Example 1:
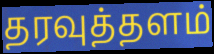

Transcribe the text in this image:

தரவுத்தளம்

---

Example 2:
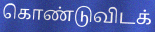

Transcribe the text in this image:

கொண்டுவிடக்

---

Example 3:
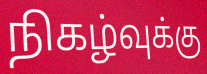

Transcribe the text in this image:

நிகழ்வுக்கு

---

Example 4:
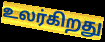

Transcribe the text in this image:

உலர்கிறது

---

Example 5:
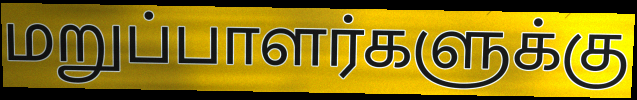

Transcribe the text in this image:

மறுப்பாளர்களுக்கு